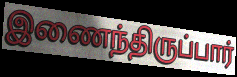
இணைந்திருப்பார்